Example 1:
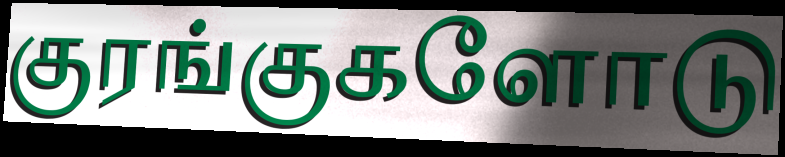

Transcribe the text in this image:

குரங்குகளோடு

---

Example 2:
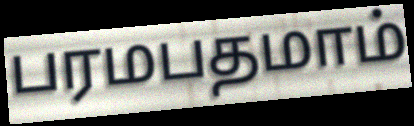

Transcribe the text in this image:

பரமபதமாம்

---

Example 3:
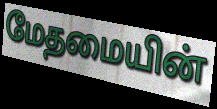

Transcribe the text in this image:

மேதமையின்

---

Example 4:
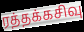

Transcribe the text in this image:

ரத்தக்கசிவு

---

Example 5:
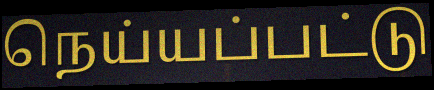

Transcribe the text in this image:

நெய்யப்பட்டு